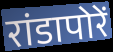
रांडापोरें